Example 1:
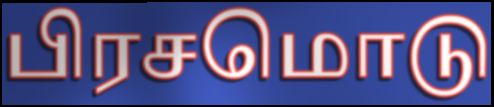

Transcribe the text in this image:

பிரசமொடு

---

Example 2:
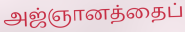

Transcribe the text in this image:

அஜ்ஞானத்தைப்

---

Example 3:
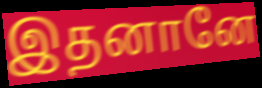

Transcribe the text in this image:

இதனானே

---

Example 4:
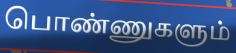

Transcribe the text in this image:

பொண்ணுகளும்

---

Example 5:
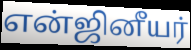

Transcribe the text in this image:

என்ஜினீயர்